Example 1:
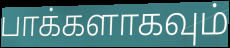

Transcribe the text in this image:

பாக்களாகவும்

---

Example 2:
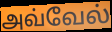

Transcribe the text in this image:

அவ்வேல்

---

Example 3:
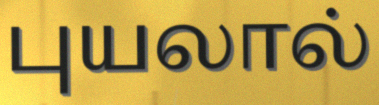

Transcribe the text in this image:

புயலால்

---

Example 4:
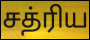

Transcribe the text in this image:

சத்ரிய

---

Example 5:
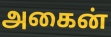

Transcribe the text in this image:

அகைன்